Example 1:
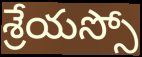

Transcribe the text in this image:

శ్రేయస్సో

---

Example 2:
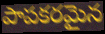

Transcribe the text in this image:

పాపకరమైన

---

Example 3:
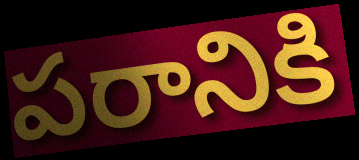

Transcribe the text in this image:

పరానికి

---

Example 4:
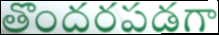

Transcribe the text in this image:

తొందరపడగా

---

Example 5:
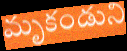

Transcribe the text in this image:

మృకండుని